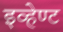
इव्हेण्ट